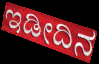
ಇಡೀದಿನ